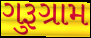
ગુરૂગ્રામ